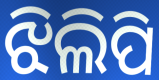
ଝିଲିପି